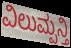
ವಿಲುಮ್ಪನ್ತಿ